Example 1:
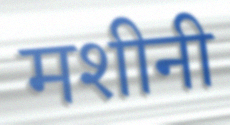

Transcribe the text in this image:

मशीनी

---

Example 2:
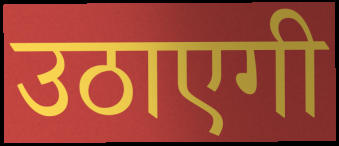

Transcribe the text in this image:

उठाएगी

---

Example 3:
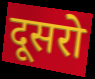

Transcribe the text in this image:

दूसरो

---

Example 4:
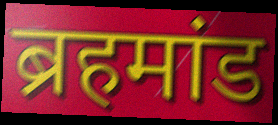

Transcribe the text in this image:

ब्रहमांड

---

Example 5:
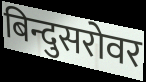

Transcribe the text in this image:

बिन्दुसरोवर